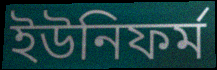
ইউনিফৰ্ম